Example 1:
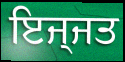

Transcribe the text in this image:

ਇਜ੍ਜਤ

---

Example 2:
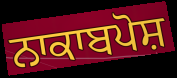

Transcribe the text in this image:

ਨਾਕਾਬਪੋਸ਼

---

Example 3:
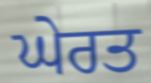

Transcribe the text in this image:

ਘੇਰਤ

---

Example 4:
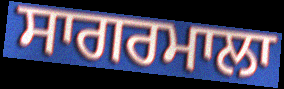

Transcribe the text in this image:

ਸਾਗਰਮਾਲਾ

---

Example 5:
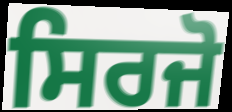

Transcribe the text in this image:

ਸਿਰਜੋ